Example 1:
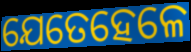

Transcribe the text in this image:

ଯେତେହେଳେ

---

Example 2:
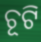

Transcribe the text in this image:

ଚୂଟି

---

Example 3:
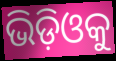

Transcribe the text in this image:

ଭିଡ଼ିଓକୁ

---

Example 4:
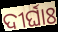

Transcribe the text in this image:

ଦୀର୍ଘାଃ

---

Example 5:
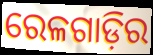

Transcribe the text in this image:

ରେଳଗାଡ଼ିର